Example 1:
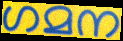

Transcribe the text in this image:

ഗമന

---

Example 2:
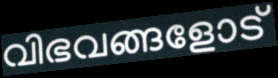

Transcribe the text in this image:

വിഭവങ്ങളോട്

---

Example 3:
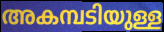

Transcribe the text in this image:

അകമ്പടിയുള്ള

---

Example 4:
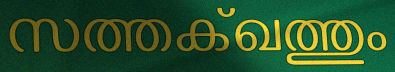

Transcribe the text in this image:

സത്തക്ഖത്തും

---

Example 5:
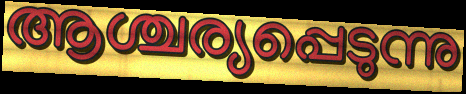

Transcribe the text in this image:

ആശ്ചര്യപ്പെടുന്നു